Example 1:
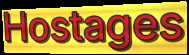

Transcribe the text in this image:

Hostages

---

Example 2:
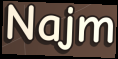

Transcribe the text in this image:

Najm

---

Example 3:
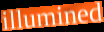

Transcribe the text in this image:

illumined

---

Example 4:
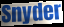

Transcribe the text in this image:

Snyder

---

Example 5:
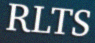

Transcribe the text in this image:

RLTS